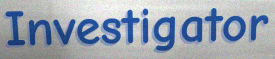
Investigator